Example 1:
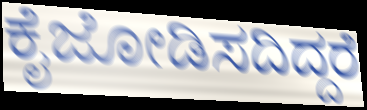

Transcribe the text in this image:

ಕೈಜೋಡಿಸದಿದ್ದರೆ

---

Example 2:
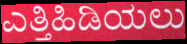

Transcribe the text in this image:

ಎತ್ತಿಹಿಡಿಯಲು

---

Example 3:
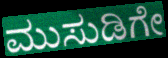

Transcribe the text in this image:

ಮುಸುಡಿಗೇ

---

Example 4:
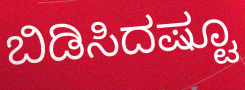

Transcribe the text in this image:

ಬಿಡಿಸಿದಷ್ಟೂ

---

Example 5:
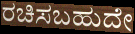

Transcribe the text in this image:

ರಚಿಸಬಹುದೇ